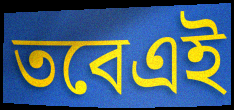
তবেএই